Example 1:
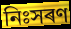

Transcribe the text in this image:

নিঃসৰণ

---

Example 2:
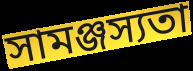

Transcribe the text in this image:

সামঞ্জস্যতা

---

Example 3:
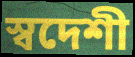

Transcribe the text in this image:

স্বদেশী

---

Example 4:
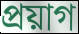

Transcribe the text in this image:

প্ৰয়াগ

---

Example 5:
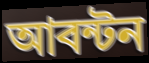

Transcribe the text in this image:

আবন্টন